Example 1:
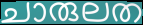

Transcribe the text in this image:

ചാരുലത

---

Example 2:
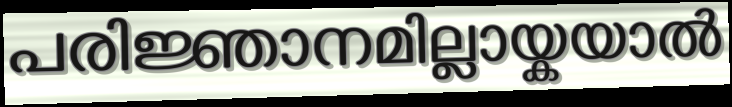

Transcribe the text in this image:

പരിജ്ഞാനമില്ലായ്കയാൽ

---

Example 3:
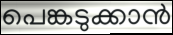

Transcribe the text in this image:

പെങ്കടുക്കാൻ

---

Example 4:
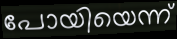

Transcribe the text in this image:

പോയിയെന്ന്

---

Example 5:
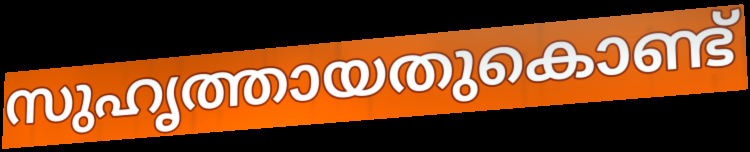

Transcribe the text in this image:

സുഹൃത്തായതുകൊണ്ട്